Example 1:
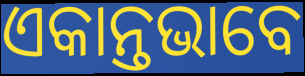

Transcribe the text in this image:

ଏକାନ୍ତଭାବେ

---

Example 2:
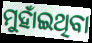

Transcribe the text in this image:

ମୁହାଁଇଥିବା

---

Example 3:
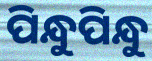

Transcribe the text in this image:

ପିନ୍ଧୁପିନ୍ଧୁ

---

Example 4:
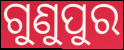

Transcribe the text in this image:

ଗୁଣୁପୁର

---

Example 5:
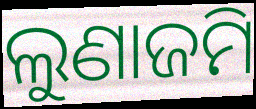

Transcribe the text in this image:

ଲୁଣାଜମି